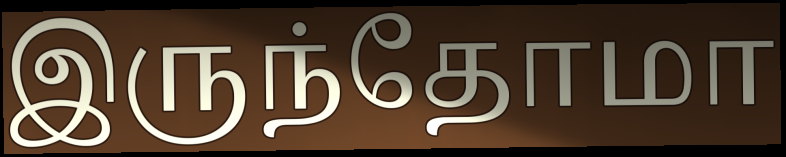
இருந்தோமா